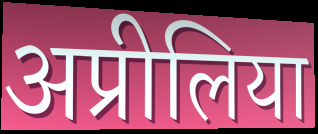
अप्रीलिया